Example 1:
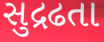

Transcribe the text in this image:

સુદ્રઢતા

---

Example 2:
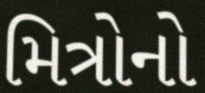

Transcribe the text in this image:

મિત્રોનો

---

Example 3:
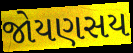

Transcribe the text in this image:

જોયણસય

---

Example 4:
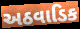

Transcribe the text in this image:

અઠવાડિક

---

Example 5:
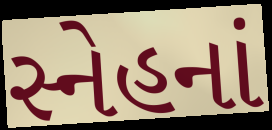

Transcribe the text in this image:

સ્નેહનાં